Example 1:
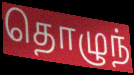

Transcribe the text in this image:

தொழுந்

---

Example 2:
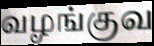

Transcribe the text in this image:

வழங்குவ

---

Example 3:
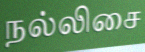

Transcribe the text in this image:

நல்லிசை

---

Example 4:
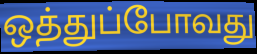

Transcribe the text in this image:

ஒத்துப்போவது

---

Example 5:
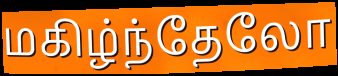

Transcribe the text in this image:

மகிழ்ந்தேலோ